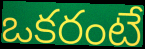
ఒకరంటే